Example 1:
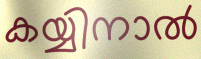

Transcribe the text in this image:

കയ്യിനാൽ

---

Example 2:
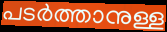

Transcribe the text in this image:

പടർത്താനുള്ള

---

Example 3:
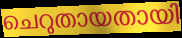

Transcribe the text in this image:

ചെറുതായതായി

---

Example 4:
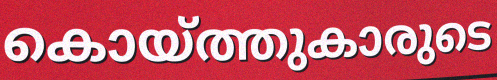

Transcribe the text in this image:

കൊയ്ത്തുകാരുടെ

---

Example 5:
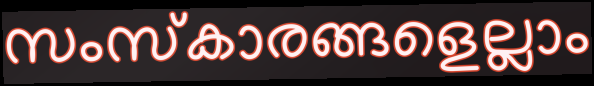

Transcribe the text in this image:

സംസ്കാരങ്ങളെല്ലാം